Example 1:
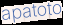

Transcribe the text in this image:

apatoto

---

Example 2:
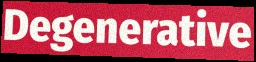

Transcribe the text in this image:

Degenerative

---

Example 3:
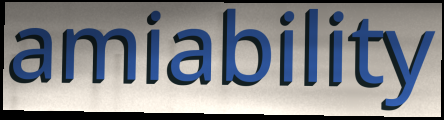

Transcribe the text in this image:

amiability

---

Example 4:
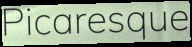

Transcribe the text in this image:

Picaresque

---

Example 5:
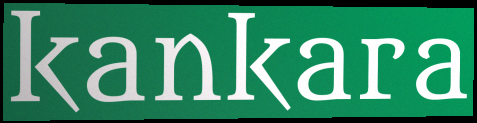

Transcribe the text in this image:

kankara